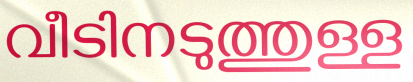
വീടിനടുത്തുള്ള